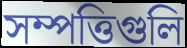
সম্পত্তিগুলি